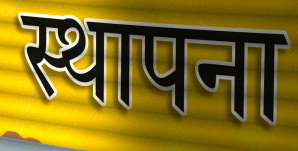
स्थापना